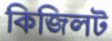
কিজিলট